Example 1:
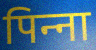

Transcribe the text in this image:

पिन्ना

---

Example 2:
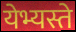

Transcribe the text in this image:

येभ्यस्ते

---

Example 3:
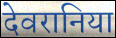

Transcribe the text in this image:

देवरानिया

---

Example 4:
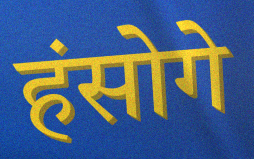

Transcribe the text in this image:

हंसोगे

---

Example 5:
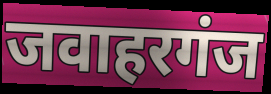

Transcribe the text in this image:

जवाहरगंज